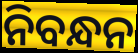
ନିବନ୍ଧନ